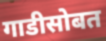
गाडीसोबत